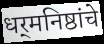
धर्मनिष्ठांचे